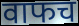
वाफच